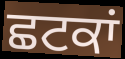
ਛਟਕਾਂ